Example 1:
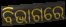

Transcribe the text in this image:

ବିଭାଗରେ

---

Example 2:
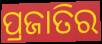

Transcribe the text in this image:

ପ୍ରଜାତିର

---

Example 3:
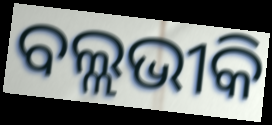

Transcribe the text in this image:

ବଲ୍ଲଭୀକି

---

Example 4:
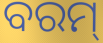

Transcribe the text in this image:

ବରମ୍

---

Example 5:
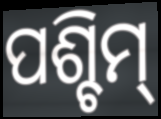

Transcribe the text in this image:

ପଶ୍ଚିମ୍